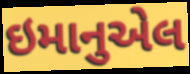
ઇમાનુએલ